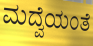
ಮದ್ವೆಯಂತೆ